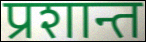
प्रशान्त